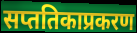
सप्ततिकाप्रकरण